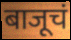
बाजूचं